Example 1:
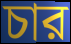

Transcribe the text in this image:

চার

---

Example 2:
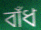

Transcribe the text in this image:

বাঁধ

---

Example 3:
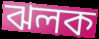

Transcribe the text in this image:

ঝলক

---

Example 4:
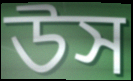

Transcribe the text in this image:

উস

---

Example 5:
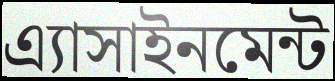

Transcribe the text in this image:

এ্যাসাইনমেন্ট